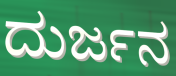
ದುರ್ಜನ